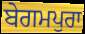
ਬੇਗਮਪੁਰਾ